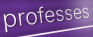
professes